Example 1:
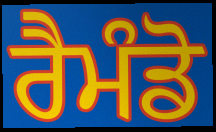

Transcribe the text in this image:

ਰੈਮੰਡੋ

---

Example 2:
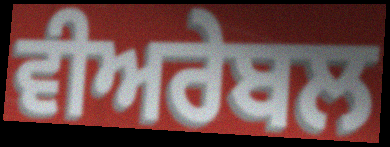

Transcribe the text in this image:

ਵੀਅਰੇਬਲ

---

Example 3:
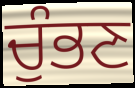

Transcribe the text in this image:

ਚੁੰਭਣ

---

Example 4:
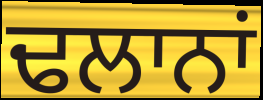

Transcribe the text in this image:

ਢਲਾਨਾਂ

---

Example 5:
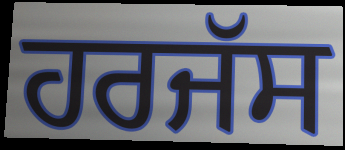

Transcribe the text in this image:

ਹਰਜੱਸ